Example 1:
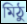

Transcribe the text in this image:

মিঠু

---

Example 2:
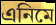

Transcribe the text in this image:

এনিমে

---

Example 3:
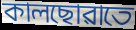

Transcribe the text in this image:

কালছোৱাতে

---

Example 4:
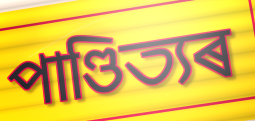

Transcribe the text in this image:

পাণ্ডিত্যৰ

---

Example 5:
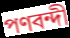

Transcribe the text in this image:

পণবন্দী